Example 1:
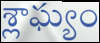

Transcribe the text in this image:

శ్లాఘ్యం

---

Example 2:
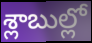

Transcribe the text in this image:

శ్లాబుల్లో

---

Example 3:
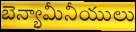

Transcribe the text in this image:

బెన్యామీనీయులు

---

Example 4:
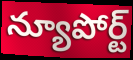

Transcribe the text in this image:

న్యూపోర్ట్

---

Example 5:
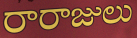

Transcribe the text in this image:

రారాజులు